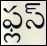
ఫ్లస్